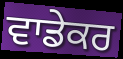
ਵਾਡੇਕਰ